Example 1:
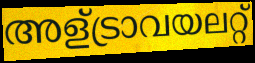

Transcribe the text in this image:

അള്ട്രാവയലറ്റ്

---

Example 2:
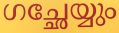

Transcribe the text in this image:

ഗച്ഛേയ്യും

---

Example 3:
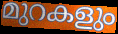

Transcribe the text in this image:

മുറകളും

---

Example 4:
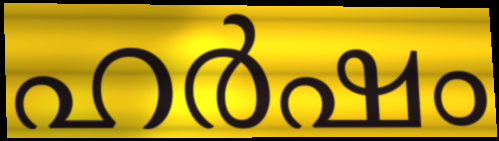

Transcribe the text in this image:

ഹർഷം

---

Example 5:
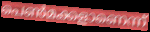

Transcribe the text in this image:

പെൺമക്കളാണെന്ന്